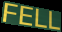
FELL